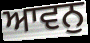
ਆਵਨੁ